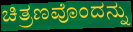
ಚಿತ್ರಣವೊಂದನ್ನು